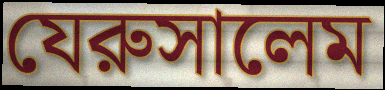
যেরুসালেম